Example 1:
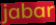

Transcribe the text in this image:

jabar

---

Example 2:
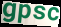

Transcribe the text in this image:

gpsc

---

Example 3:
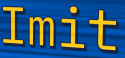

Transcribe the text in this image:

Imit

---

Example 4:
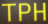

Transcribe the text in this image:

TPH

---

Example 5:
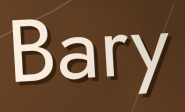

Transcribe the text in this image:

Bary